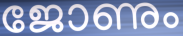
ജോണും